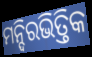
ମନ୍ଦିରଭିତ୍ତିକ